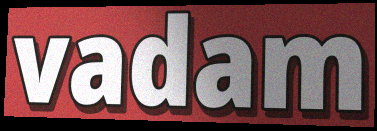
vadam